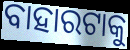
ବାହାରଟାକୁ